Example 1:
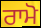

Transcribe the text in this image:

ਰਾਮੋ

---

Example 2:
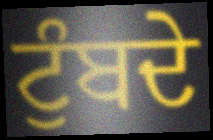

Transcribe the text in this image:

ਟੁੰਬਦੇ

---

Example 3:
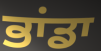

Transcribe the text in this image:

ਭਾਂਡਾ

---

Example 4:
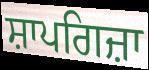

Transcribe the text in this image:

ਸ਼ਾਪਗਿਜ਼ਾ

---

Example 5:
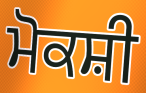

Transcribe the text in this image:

ਮੋਕਸ਼ੀ